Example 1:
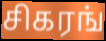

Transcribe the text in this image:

சிகரங்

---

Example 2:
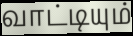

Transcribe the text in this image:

வாட்டியும்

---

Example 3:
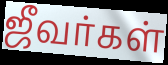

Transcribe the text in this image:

ஜீவர்கள்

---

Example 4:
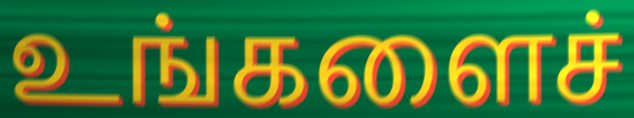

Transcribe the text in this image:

உங்களைச்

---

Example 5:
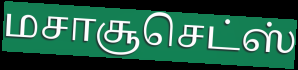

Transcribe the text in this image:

மசாசூசெட்ஸ்